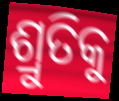
ଶ୍ରୁତିକୁ